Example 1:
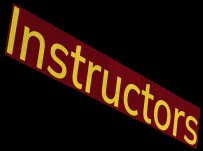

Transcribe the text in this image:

Instructors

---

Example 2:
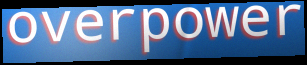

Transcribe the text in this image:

overpower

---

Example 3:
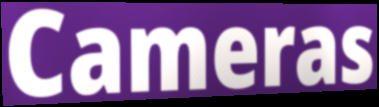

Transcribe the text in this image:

Cameras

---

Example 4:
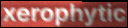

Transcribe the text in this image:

xerophytic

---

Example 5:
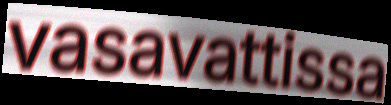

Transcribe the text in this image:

vasavattissa